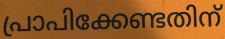
പ്രാപിക്കേണ്ടതിന്